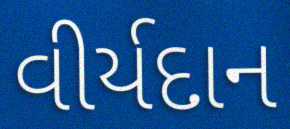
વીર્યદાન